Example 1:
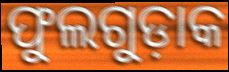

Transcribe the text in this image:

ଫୁଲଗୁଡ଼ାକ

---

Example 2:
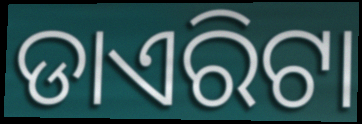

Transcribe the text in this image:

ଡାଏରିଟା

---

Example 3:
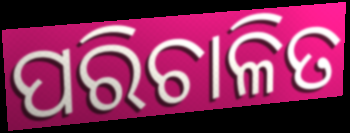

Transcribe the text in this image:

ପରିଚାଳିତ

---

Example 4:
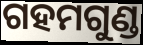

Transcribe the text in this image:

ଗହମଗୁଣ୍ଡ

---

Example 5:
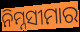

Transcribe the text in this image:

ନିମ୍ନସୀମାର